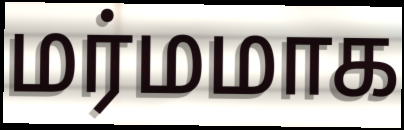
மர்மமாக